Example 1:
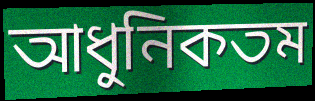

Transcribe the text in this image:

আধুনিকতম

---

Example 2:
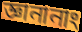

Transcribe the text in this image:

জ্ঞানানাং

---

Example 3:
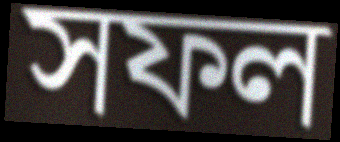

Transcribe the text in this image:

সফল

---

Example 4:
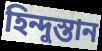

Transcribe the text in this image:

হিন্দুস্তান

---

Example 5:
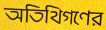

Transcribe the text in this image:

অতিথিগণের